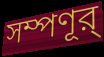
সম্পণূর্